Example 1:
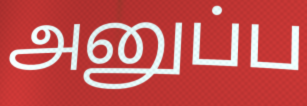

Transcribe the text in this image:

அனுப்ப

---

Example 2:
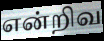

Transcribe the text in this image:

என்றிவ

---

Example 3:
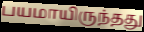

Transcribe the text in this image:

பயமாயிருந்தது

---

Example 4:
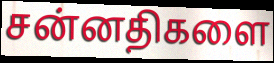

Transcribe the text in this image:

சன்னதிகளை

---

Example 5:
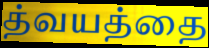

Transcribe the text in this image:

த்வயத்தை